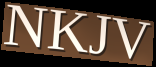
NKJV